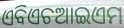
ଏବିଏଚଆଇଏମ